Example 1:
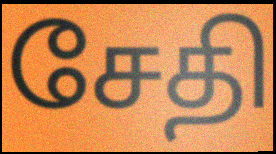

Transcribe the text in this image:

சேதி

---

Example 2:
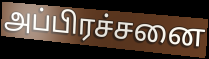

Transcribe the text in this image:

அப்பிரச்சனை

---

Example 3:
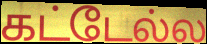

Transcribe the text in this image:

கட்டேல்ல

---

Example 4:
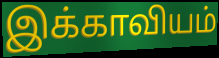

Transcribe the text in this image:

இக்காவியம்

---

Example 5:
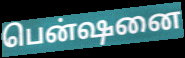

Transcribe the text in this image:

பென்ஷனை